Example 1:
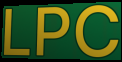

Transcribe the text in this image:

LPC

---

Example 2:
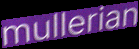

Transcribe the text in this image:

mullerian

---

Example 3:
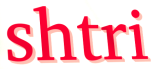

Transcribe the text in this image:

shtri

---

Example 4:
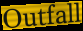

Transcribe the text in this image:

Outfall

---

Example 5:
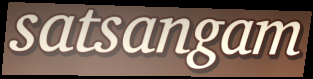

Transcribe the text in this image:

satsangam